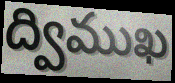
ద్విముఖ